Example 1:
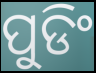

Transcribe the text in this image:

ପୁଡିଂ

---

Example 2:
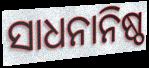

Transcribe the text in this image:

ସାଧନାନିଷ୍ଠ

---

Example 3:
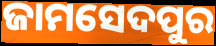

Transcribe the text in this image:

ଜାମସେଦପୁର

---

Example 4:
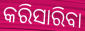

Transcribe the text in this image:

କରିସାରିବା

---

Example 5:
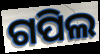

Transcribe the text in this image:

ଗପିଲ